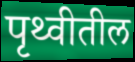
पृथ्वीतील